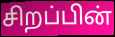
சிறப்பின்